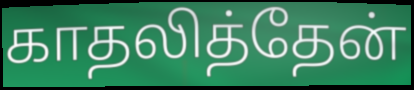
காதலித்தேன்